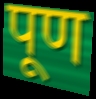
पूण